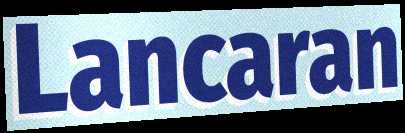
Lancaran